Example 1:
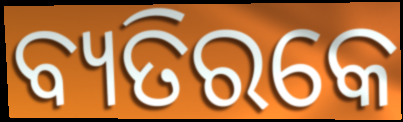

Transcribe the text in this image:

ବ୍ୟତିରକେ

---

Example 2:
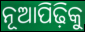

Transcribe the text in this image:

ନୂଆପିଢ଼ିକୁ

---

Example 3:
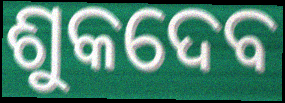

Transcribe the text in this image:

ଶୁକଦେବ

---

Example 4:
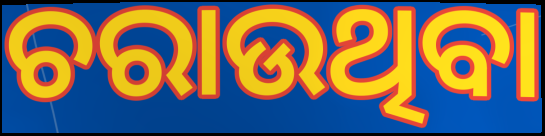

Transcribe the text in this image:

ଚରାଉଥିବା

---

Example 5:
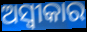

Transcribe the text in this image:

ଅସ୍ୱୀକାର